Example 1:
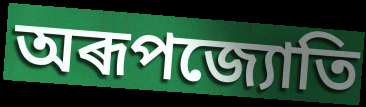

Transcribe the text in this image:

অৰূপজ্যোতি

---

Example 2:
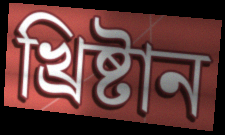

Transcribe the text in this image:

খ্ৰিষ্টান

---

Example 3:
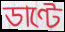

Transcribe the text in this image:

ডাণ্টে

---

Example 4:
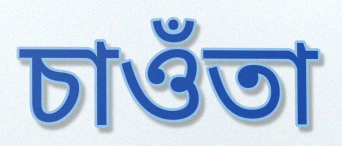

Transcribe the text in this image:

চাওঁতা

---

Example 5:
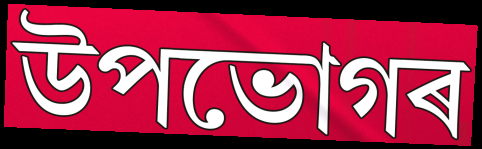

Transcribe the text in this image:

উপভোগৰ